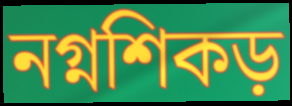
নগ্নশিকড়